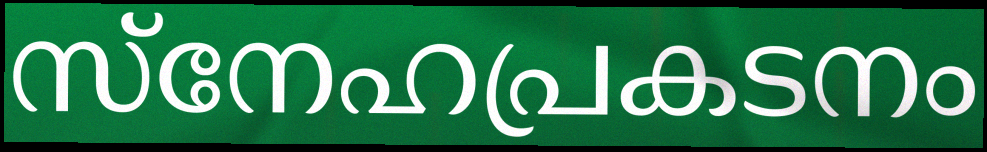
സ്നേഹപ്രകടനം